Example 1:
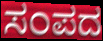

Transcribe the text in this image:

ಸಂಪದ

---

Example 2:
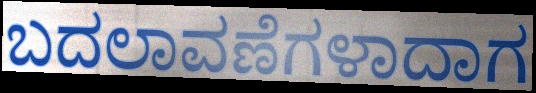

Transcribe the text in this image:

ಬದಲಾವಣೆಗಳಾದಾಗ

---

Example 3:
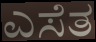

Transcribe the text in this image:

ಎಸೆತ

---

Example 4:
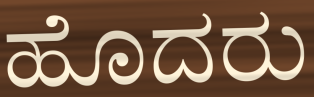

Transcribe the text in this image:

ಹೊದರು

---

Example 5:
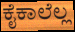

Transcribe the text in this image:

ಕೈಕಾಲೆಲ್ಲ